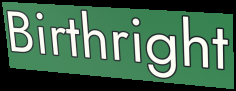
Birthright